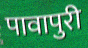
पावापुरी